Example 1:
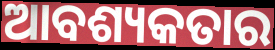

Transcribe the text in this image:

ଆବଶ୍ୟକତାର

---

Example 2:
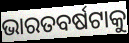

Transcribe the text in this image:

ଭାରତବର୍ଷଟାକୁ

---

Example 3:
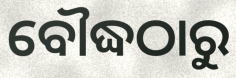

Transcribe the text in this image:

ବୌଦ୍ଧଠାରୁ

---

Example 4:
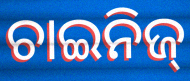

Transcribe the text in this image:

ଚାଇନିଜ୍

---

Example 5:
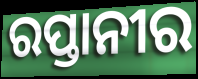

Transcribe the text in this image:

ରପ୍ତାନୀର